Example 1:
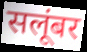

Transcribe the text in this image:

सलूंबर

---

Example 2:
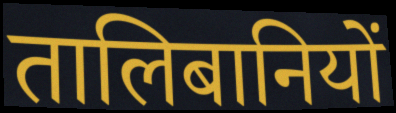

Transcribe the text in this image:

तालिबानियों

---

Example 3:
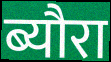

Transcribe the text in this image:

ब्‍यौरा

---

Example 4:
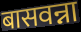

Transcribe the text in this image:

बासवन्ना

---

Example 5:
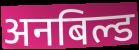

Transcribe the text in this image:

अनबिल्ड